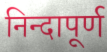
निन्दापूर्ण